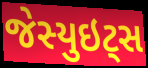
જેસ્યુઇટ્સ